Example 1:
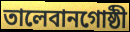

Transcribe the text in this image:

তালেবানগোষ্ঠী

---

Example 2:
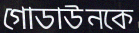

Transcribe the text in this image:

গোডাউনকে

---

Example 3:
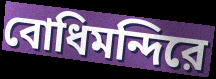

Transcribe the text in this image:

বোধিমন্দিরে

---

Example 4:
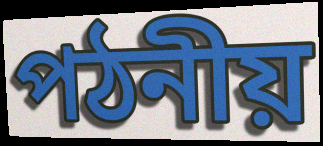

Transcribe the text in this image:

পঠনীয়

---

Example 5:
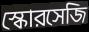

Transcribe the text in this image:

স্কোরসেজি